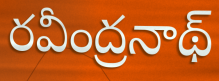
రవీంద్రనాథ్